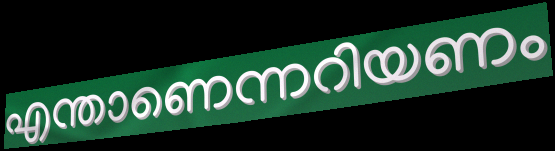
എന്താണെന്നറിയണം